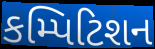
કમ્પિટિશન